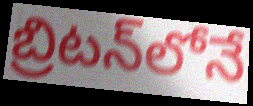
బ్రిటన్‌లోనే